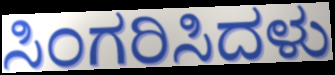
ಸಿಂಗರಿಸಿದಳು